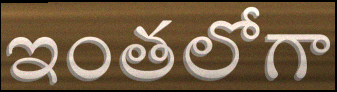
ఇంతలోగా